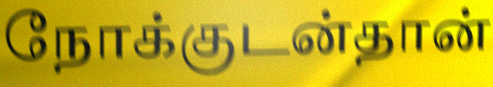
நோக்குடன்தான்